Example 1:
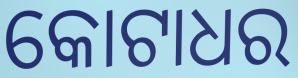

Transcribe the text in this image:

କୋଟାଧର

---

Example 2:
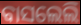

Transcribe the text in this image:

ବାସଲେଲି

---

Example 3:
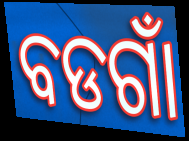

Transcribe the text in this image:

ବଡଗାଁ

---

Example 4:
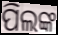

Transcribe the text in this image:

ପିଲଙ୍କ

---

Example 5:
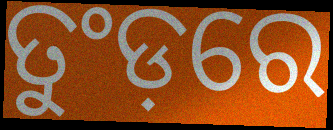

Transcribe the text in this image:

ତୁଂଡ଼ରେ